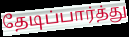
தேடிப்பார்த்து